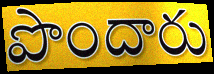
పొందారు